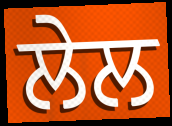
ਲੇਲ